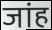
जांह